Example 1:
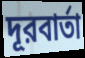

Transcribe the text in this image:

দূরবার্তা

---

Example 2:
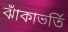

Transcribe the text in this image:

ঝাঁকাভর্তি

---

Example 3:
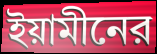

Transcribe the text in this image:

ইয়ামীনের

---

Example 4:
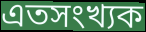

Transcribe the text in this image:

এতসংখ্যক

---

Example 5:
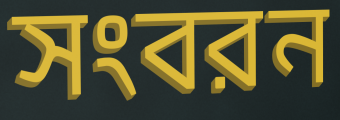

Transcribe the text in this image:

সংবরন